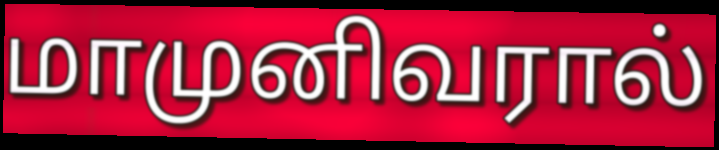
மாமுனிவரால்